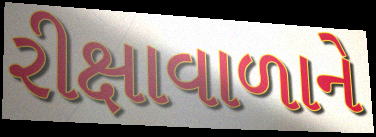
રીક્ષાવાળાને